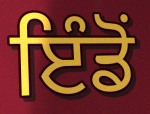
ਇੰਡੋਂ